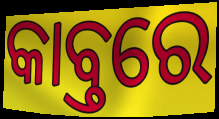
କାବ୍ତରେ